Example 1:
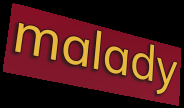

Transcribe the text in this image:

malady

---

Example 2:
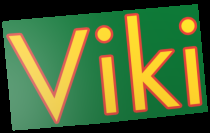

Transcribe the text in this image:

Viki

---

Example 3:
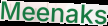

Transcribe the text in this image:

Meenaks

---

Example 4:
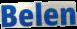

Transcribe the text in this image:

Belen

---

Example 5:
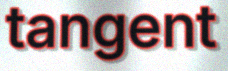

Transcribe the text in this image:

tangent